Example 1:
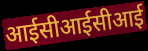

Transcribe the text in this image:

आईसीआईसीआई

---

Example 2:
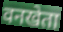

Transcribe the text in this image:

वनखेता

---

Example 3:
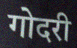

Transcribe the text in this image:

गोदरी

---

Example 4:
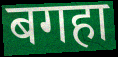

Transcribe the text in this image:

बगहा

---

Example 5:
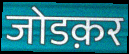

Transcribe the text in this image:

जोडक़र